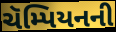
ચૅમ્પિયનની